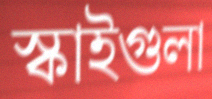
স্কাইগুলা